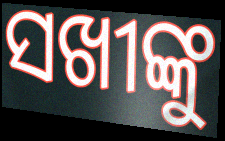
ସଖୀଙ୍କୁ